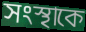
সংস্থাকে